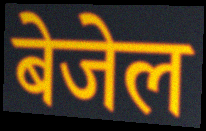
बेजेल